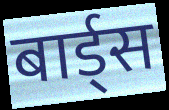
बार्ड्स